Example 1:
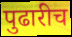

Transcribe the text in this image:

पुढारीच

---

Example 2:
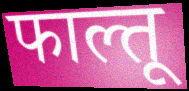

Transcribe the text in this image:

फाल्तू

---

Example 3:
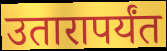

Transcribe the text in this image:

उतारापर्यंत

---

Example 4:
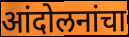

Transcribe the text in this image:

आंदोलनांचा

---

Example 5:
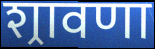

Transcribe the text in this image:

श्रावणा